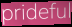
prideful